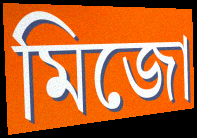
মিজো